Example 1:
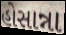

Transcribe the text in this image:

હોસાન્ના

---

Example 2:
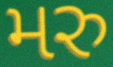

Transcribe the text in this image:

મરુ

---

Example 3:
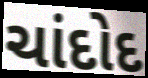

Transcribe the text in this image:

ચાંદોદ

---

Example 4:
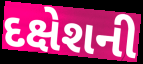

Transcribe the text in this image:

દક્ષેશની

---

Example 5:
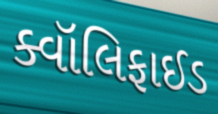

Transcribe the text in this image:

ક્વૉલિફાઈડ